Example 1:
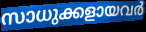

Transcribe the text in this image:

സാധുക്കളായവർ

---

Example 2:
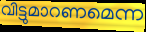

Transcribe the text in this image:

വിട്ടുമാറണമെന്ന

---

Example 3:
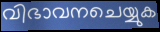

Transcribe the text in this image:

വിഭാവനചെയ്യുക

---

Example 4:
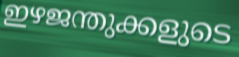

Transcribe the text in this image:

ഇഴജന്തുക്കളുടെ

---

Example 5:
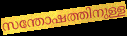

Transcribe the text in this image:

സന്തോഷത്തിനുള്ള